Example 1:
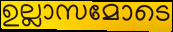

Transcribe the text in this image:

ഉല്ലാസമോടെ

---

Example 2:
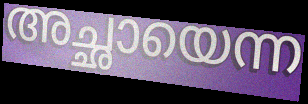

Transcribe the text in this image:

അച്ഛായെന്ന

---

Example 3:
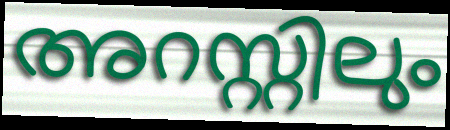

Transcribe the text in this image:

അറസ്റ്റിലും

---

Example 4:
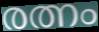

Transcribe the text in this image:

രത്നം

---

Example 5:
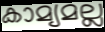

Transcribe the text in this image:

കാമ്യമല്ല